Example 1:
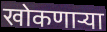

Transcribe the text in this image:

खोकणाऱ्या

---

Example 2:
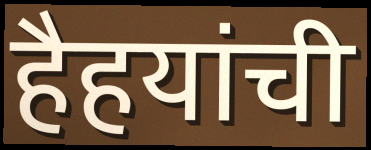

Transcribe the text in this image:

हैहयांची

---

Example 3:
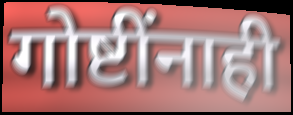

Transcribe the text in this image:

गोष्टींनाही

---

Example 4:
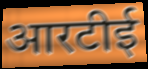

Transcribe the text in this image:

आरटीई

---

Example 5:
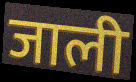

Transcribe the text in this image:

जाली